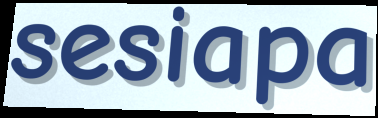
sesiapa